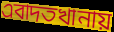
এবাদতখানায়